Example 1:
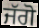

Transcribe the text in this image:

ਜੱਗੋ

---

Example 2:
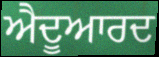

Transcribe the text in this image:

ਐਦੂਆਰਦ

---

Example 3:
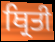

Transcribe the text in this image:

ਥ੍ਰਿਤੀ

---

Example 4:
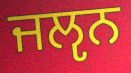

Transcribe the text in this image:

ਜਲੵਨ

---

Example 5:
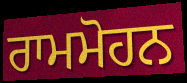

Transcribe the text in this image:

ਰਾਮਮੋਹਨ